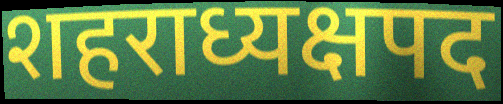
शहराध्यक्षपद